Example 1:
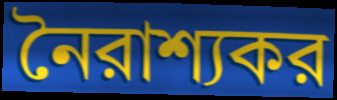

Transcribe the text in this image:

নৈরাশ্যকর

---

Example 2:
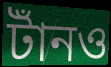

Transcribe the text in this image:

টাঁনও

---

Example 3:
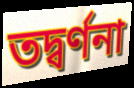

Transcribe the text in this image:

তদ্বর্ণনা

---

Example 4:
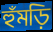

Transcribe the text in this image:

হুঁমড়ি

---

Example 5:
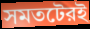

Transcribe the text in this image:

সমতটেরই